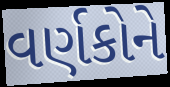
વર્ણકોને